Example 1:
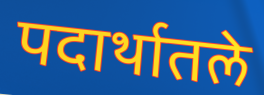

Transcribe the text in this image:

पदार्थातले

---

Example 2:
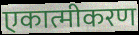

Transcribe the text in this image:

एकात्मीकरण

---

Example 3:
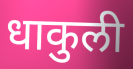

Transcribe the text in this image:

धाकुली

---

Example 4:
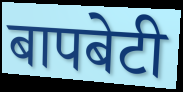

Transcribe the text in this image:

बापबेटी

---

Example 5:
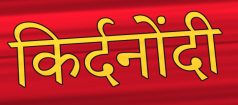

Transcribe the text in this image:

किर्दनोंदी